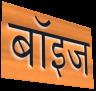
बॉइज